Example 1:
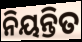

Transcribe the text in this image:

ନିୟନ୍ତିତ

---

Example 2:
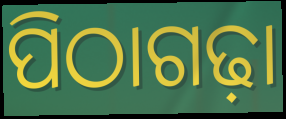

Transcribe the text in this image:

ପିଠାଗଢ଼ା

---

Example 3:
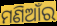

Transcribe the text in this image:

ମଣିଆଁର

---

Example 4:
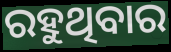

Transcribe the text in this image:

ରହୁଥିବାର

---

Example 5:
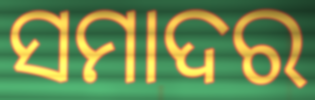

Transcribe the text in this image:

ସମାଦର